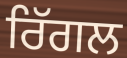
ਰਿੱਗਲ